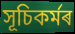
সূচিকৰ্মৰ